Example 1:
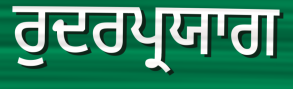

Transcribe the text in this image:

ਰੁਦਰਪ੍ਰਯਾਗ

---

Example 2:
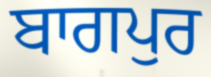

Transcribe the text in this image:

ਬਾਗਪੁਰ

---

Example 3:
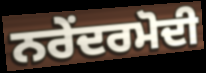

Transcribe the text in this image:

ਨਰੇਂਦਰਮੋਦੀ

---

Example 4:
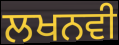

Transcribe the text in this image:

ਲਖਨਵੀ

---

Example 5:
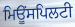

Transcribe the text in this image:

ਮਿਊਂਸਪਿਲਟੀ